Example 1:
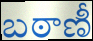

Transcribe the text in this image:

బఠాణీ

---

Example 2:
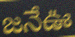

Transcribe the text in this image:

జనేఊ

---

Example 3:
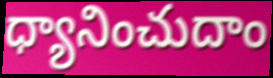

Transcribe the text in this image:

ధ్యానించుదాం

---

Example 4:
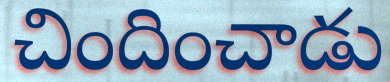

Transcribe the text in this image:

చిందించాడు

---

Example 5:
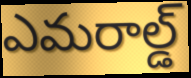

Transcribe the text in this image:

ఎమరాల్డ్